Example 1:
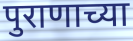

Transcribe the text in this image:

पुराणाच्या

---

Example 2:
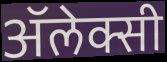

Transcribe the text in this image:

ॲलेक्सी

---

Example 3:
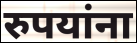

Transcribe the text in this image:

रुपयांना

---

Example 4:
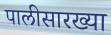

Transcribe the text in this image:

पालीसारख्या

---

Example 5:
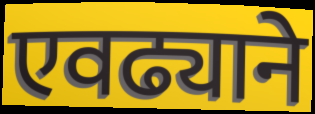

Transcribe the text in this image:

एवढ्याने